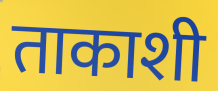
ताकाशी